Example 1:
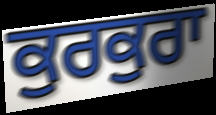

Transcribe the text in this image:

ਕੁਰਕੁਰਾ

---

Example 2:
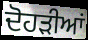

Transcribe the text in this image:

ਦੋਹੜੀਆਂ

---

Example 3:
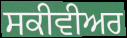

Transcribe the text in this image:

ਸਕੀਵੀਅਰ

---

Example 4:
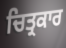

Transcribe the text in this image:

ਚਿਤ੍ਰਕਾਰ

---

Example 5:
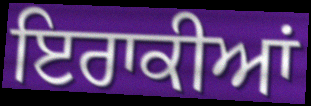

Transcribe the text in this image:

ਇਰਾਕੀਆਂ